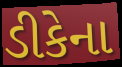
ડીકેના